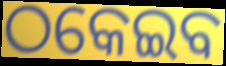
ଠକେଇବ